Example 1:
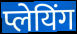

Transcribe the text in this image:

प्लेयिंग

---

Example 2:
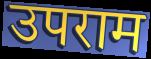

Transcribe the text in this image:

उपराम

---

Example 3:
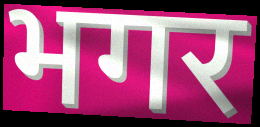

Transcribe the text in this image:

भगर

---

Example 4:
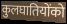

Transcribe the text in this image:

कुलघातियोंको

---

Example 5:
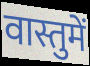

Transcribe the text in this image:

वास्तुमें